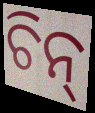
ଚିନ୍